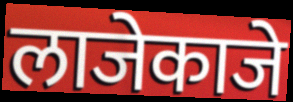
लाजेकाजे